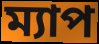
ম্যাপ